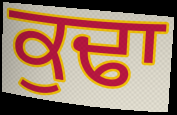
ਕੁਢਾ